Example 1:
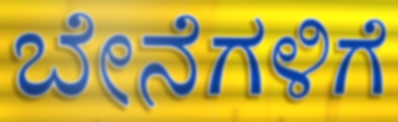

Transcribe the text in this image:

ಬೇನೆಗಳಿಗೆ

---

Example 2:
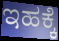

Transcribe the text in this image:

ಇಹಕ್ಕೆ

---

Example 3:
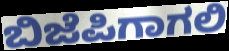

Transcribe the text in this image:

ಬಿಜೆಪಿಗಾಗಲಿ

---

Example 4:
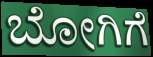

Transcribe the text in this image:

ಬೋಗಿಗೆ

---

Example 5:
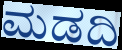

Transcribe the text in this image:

ಮಡದಿ